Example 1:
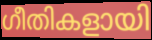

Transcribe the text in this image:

ഗീതികളായി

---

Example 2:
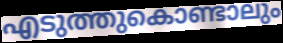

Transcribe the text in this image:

എടുത്തുകൊണ്ടാലും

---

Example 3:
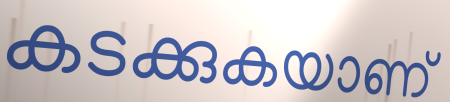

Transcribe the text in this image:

കടക്കുകയാണ്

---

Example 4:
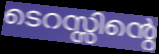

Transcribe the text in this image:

ടെറസ്സിന്റെ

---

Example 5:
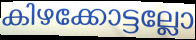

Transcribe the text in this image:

കിഴക്കോട്ടല്ലോ